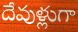
దేవుళ్లుగా